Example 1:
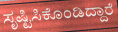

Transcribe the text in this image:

ಸೃಷ್ಟಿಸಿಕೊಂಡಿದ್ದಾರೆ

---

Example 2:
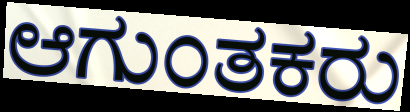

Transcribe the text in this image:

ಆಗುಂತಕರು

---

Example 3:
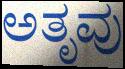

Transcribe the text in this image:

ಅತೃವು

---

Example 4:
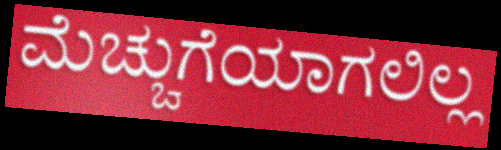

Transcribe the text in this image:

ಮೆಚ್ಚುಗೆಯಾಗಲಿಲ್ಲ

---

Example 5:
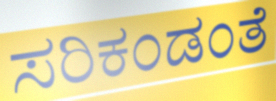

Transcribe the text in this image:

ಸರಿಕಂಡಂತೆ